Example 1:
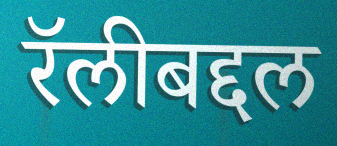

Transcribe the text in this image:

रॅलीबद्दल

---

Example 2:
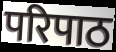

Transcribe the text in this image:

परिपाठ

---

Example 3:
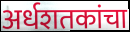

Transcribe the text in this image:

अर्धशतकांचा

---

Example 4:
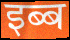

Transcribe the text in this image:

इब्ब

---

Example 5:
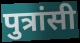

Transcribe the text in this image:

पुत्रांसी